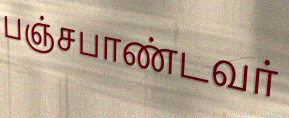
பஞ்சபாண்டவர்